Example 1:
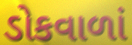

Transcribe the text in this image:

ડોકવાળાં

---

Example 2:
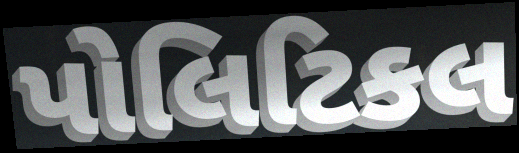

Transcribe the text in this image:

પોલિટિકલ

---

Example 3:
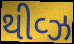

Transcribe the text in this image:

થીવ્ઝ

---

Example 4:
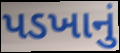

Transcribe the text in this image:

પડખાનું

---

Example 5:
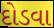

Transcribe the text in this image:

દોડવા